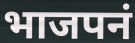
भाजपनं